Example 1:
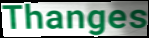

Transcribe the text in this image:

Thanges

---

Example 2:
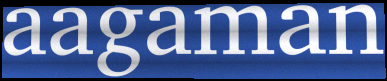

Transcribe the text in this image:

aagaman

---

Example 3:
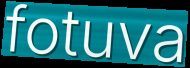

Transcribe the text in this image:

fotuva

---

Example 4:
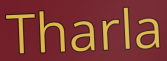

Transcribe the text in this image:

Tharla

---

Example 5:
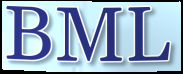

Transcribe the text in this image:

BML